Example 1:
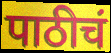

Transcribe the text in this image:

पाठीचं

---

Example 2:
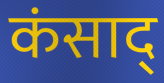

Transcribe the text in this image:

कंसाद्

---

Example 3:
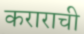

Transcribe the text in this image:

कराराची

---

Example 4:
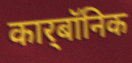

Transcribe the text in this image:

कार्‌बॉनिक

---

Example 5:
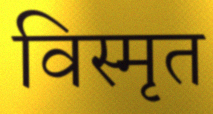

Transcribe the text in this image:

विस्मृत